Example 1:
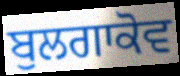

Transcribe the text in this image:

ਬੁਲਗਾਕੋਵ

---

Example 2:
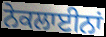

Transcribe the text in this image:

ਨੇਕਲਾਈਨਾਂ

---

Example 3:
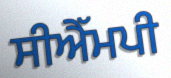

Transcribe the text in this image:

ਸੀਐੱਮਪੀ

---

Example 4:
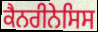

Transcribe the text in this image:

ਕੈਨਰੀਨੇਸਿਸ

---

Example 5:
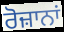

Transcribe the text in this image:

ਰੋਜ਼ਾਨਾਂ